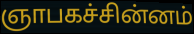
ஞாபகச்சின்னம்